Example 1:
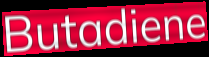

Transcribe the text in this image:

Butadiene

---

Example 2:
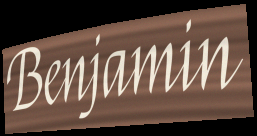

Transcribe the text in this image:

Benjamin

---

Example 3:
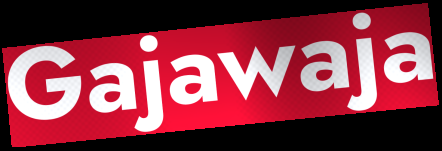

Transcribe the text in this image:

Gajawaja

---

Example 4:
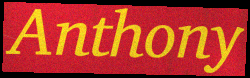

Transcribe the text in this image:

Anthony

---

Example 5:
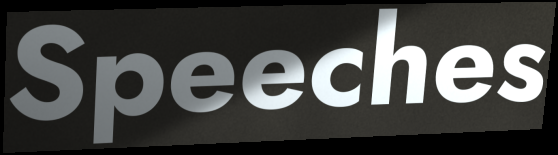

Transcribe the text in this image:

Speeches